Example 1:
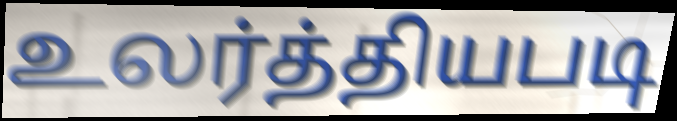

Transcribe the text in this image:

உலர்த்தியபடி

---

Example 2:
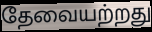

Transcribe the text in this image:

தேவையற்றது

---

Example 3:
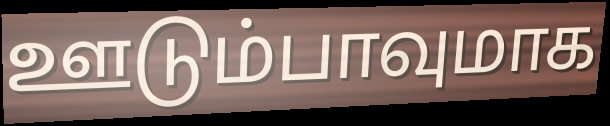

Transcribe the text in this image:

ஊடும்பாவுமாக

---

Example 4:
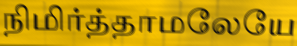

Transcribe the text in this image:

நிமிர்த்தாமலேயே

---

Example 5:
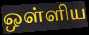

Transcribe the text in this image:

ஒள்ளிய